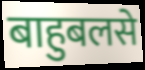
बाहुबलसे